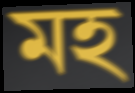
মহ